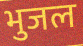
भुजल